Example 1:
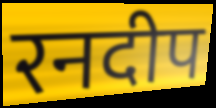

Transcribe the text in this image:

रनदीप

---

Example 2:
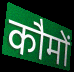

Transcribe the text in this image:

कौमों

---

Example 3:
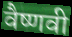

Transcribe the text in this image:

वैष्णवी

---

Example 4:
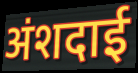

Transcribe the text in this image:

अंशदाई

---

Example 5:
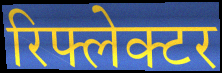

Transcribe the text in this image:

रिफ्लेक्टर